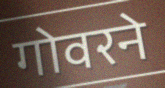
गोवरने